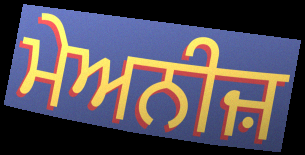
ਮੇਅਨੀਜ਼